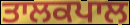
ਤਾਲਕਪਾਲ